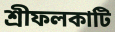
শ্রীফলকাটি